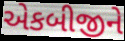
એકબીજીને